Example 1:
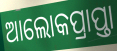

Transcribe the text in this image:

ଆଲୋକପ୍ରାପ୍ତା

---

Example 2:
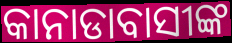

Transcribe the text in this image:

କାନାଡାବାସୀଙ୍କ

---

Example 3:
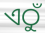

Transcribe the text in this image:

ଏଠୁଁ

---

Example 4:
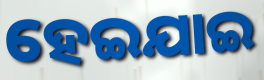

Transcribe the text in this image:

ହେଇଯାଇ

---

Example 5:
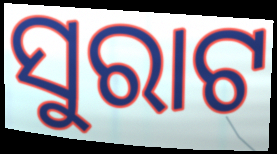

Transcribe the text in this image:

ସୁରାଟ